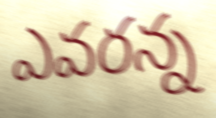
ఎవరన్న